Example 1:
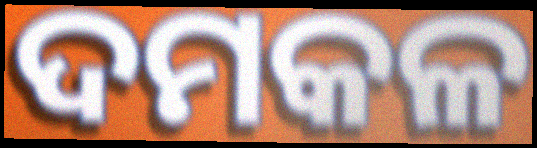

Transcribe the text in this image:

ଦମକଳ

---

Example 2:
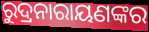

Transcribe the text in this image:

ରୁଦ୍ରନାରାୟଣଙ୍କର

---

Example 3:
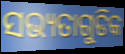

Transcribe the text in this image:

ସଭ୍ୟତାଗୁଡିକ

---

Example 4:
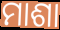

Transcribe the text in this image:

ମାଶା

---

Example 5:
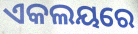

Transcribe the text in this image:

ଏକଲୟରେ